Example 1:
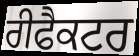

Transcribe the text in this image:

ਰੀਫੈਕਟਰ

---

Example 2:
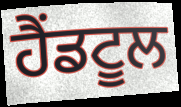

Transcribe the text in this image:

ਹੈਂਡਟੂਲ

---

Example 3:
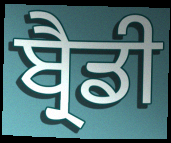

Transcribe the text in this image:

ਬ੍ਰੈਡੀ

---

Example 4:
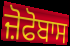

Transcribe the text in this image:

ਜ਼ੋਫੋਬਾਸ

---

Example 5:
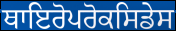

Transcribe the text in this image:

ਥਾਇਰੋਪਰੋਕਸਿਡੇਸ